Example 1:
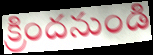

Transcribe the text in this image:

క్రిందనుండి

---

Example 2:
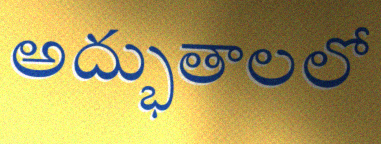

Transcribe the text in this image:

అద్భుతాలలో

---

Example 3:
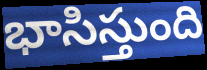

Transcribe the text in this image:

భాసిస్తుంది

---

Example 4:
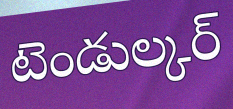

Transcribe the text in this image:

టెండుల్కర్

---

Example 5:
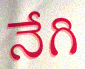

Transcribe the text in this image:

నేగి